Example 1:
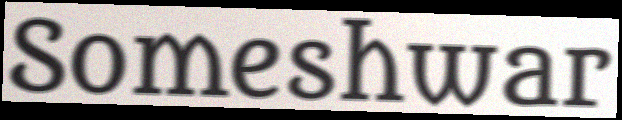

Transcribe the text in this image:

Someshwar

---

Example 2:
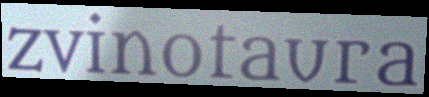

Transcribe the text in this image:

zvinotaura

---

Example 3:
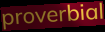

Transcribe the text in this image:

proverbial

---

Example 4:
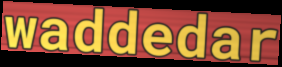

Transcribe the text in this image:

waddedar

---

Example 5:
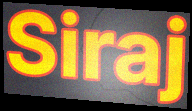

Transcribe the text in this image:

Siraj